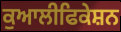
ਕੁਆਲੀਫਿਕੇਸ਼ਨ